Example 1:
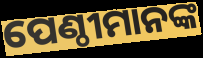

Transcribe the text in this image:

ପେଣ୍ଠୀମାନଙ୍କ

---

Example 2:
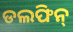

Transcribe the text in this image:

ଡଲଫିନ୍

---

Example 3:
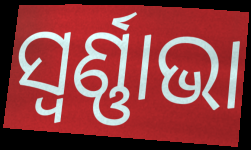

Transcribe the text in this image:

ସ୍ୱର୍ଣ୍ଣାଭା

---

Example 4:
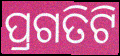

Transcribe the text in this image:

ପ୍ରଗତିଟି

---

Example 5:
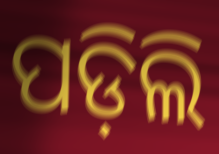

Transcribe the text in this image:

ପଡ଼ିଲି